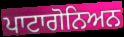
ਪਾਟਾਗੋਨਿਅਨ